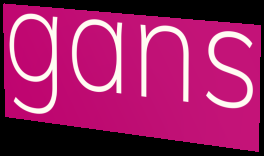
gans